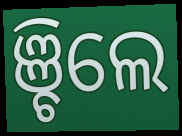
ଞ୍ଚିଲେ